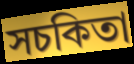
সচকিতা